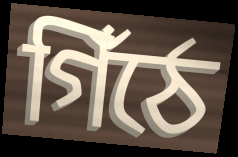
গিঁঠে